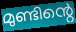
മുണ്ടിന്റെ